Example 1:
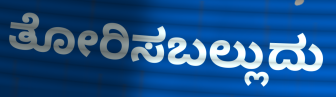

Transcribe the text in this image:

ತೋರಿಸಬಲ್ಲುದು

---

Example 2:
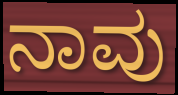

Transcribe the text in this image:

ನಾವು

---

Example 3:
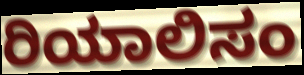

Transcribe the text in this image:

ರಿಯಾಲಿಸಂ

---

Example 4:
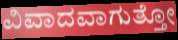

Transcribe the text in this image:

ವಿವಾದವಾಗುತ್ತೋ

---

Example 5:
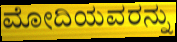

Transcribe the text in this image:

ಮೋದಿಯವರನ್ನು